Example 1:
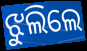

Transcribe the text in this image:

ଝୁଲିଲେ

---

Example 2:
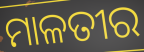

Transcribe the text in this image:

ମାଳତୀର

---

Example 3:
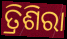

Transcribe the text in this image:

ତ୍ରିଶିରା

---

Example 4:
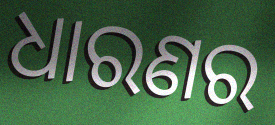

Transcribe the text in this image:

ଧାରଣର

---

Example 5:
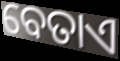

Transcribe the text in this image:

ବେତାଏ